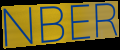
NBER